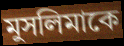
মুসলিমাকে